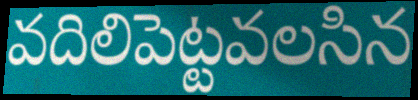
వదిలిపెట్టవలసిన